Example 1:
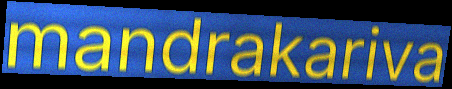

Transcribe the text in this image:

mandrakariva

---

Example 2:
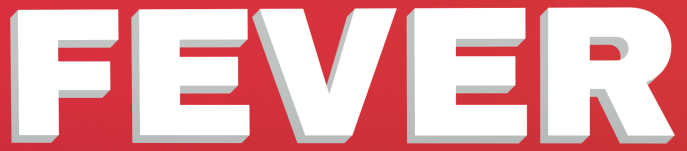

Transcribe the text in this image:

FEVER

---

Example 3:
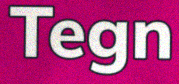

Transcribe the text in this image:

Tegn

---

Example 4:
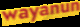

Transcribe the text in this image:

wayanun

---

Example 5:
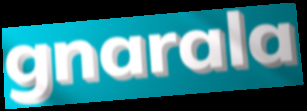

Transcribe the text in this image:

gnarala